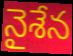
నైశేన